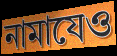
নামাযেও